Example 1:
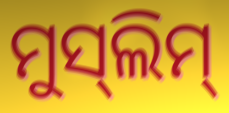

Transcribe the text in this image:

ମୁସ୍‌ଲିମ୍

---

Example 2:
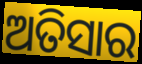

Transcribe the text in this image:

ଅତିସାର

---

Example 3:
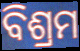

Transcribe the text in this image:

ବିଶ୍ରମ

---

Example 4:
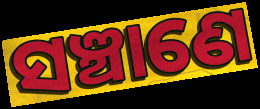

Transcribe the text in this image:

ସଞ୍ଚାଣେ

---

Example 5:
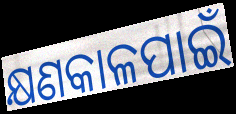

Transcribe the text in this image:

କ୍ଷଣକାଳପାଇଁ